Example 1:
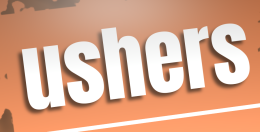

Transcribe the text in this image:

ushers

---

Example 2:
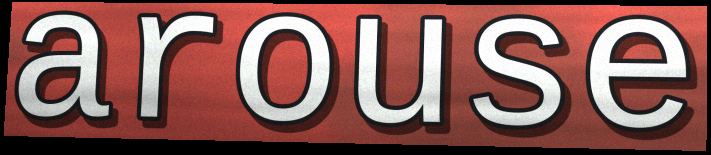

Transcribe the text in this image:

arouse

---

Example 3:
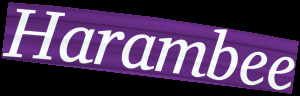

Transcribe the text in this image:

Harambee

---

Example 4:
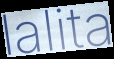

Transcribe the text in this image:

lalita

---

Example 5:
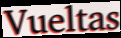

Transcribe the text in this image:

Vueltas